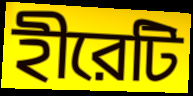
হীরেটি